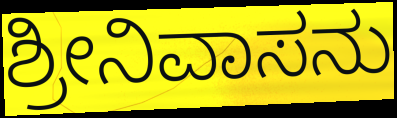
ಶ್ರೀನಿವಾಸನು